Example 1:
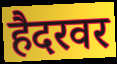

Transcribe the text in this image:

हैदरवर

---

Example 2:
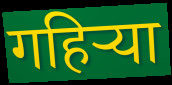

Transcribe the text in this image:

गहिर्‍या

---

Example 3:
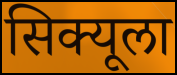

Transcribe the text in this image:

सिक्यूला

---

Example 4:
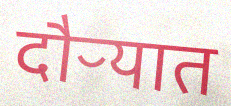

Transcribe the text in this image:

दौऱ्यात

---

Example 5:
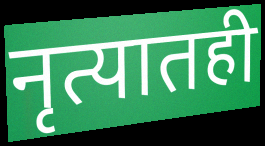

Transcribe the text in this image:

नृत्यातही